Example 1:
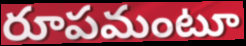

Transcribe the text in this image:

రూపమంటూ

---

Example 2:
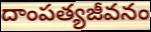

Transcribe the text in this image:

దాంపత్యజీవనం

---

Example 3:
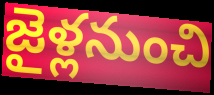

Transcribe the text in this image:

జైళ్లనుంచి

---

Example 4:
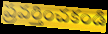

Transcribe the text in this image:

ప్రవర్తించకండి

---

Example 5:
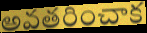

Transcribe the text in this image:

అవతరించాక